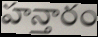
హన్తారం